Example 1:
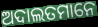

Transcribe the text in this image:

ଅଦାଲତମାନେ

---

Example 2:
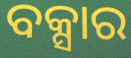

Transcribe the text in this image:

ବକ୍ସାର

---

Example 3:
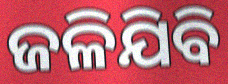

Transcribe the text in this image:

ଜଳିଯିବି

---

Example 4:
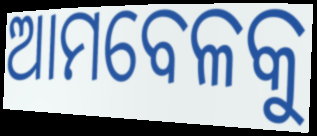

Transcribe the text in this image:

ଆମବେଳକୁ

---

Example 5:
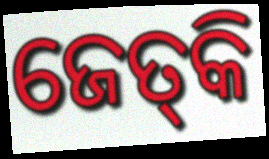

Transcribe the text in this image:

ଜେତ୍‌କି